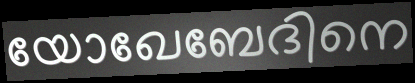
യോഖേബേദിനെ